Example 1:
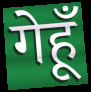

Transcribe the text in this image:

गेहूँ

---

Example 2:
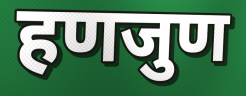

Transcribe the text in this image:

हणजुण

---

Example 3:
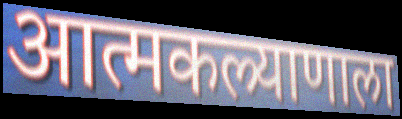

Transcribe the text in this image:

आत्मकल्याणाला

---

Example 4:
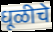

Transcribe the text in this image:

धूळीचे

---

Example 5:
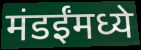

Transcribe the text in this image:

मंडईंमध्ये